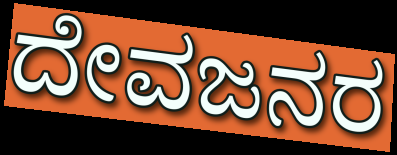
ದೇವಜನರ